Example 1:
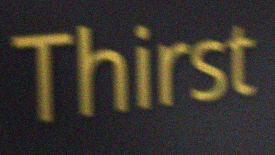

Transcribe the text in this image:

Thirst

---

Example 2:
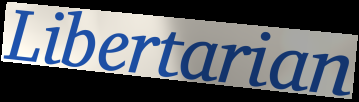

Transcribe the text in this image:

Libertarian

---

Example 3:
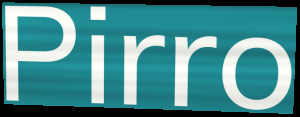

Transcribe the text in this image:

Pirro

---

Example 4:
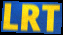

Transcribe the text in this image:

LRT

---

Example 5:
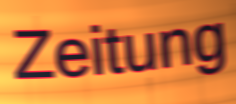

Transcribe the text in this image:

Zeitung